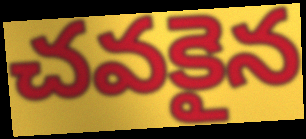
చవకైన